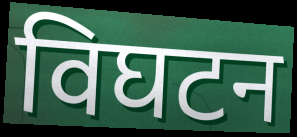
विघटन